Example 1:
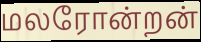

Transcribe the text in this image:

மலரோன்றன்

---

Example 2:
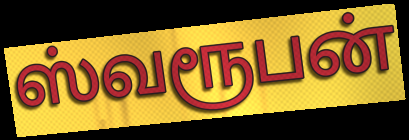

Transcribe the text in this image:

ஸ்வரூபன்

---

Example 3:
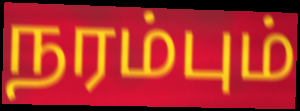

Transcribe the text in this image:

நரம்பும்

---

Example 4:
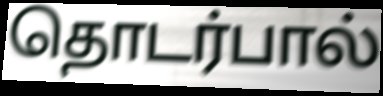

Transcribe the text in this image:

தொடர்பால்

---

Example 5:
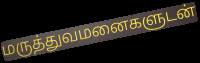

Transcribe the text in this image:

மருத்துவமனைகளுடன்